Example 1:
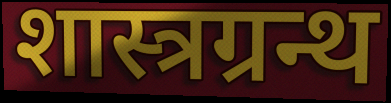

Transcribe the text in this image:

शास्त्रग्रन्थ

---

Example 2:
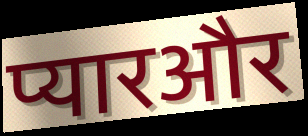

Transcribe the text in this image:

प्यारऔर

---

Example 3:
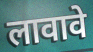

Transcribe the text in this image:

लावावे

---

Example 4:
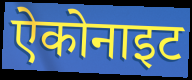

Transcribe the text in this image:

ऐकोनाइट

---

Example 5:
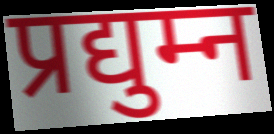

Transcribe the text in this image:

प्रद्युम्न